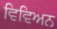
ਵਿਵਿਅਨ